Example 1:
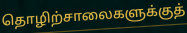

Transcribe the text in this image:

தொழிற்சாலைகளுக்குத்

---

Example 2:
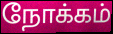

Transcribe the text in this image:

நோக்கம்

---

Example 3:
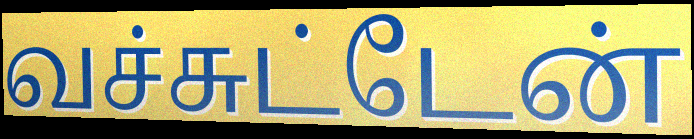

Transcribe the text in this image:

வச்சுட்டேன்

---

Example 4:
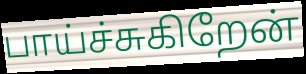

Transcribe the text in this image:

பாய்ச்சுகிறேன்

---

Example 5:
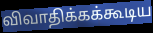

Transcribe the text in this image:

விவாதிக்கக்கூடிய